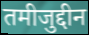
तमीजुद्दीन